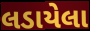
લડાયેલા